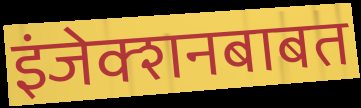
इंजेक्शनबाबत